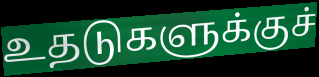
உதடுகளுக்குச்